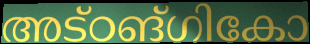
അട്ഠങ്ഗികോ